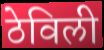
ठेविली